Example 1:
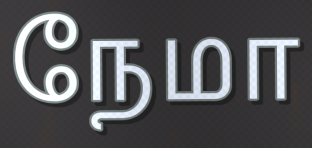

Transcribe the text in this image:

நேமா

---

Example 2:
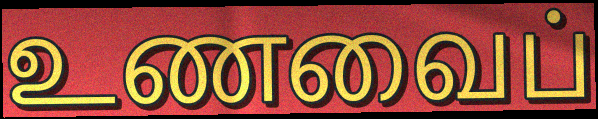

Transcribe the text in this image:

உணவைப்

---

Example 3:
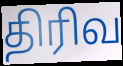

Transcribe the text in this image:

திரிவ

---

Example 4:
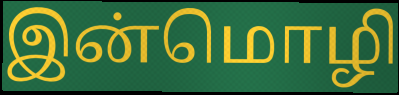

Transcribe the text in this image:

இன்மொழி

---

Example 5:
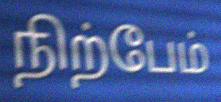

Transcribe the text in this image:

நிற்பேம்